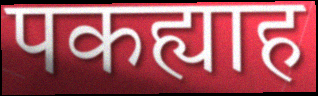
पकह्याह